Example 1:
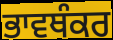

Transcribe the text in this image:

ਭਾਵਥੰਕਰ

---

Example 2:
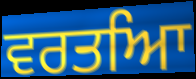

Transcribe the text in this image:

ਵਰਤਆਿ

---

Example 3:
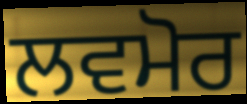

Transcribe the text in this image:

ਲਵਮੋਰ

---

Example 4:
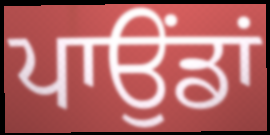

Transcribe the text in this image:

ਪਾਉਂਡਾਂ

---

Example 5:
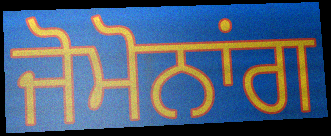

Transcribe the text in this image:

ਜੋਮੋਨਾਂਗ